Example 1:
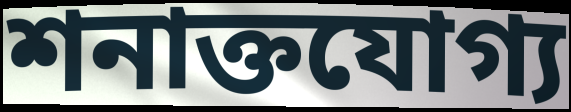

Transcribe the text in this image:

শনাক্তযোগ্য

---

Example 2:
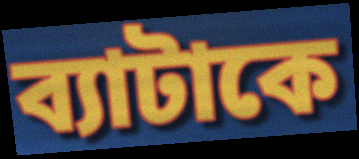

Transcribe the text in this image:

ব্যাটাকে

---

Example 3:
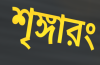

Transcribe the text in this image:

শৃঙ্গারং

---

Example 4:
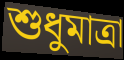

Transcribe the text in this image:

শুধুমাত্রা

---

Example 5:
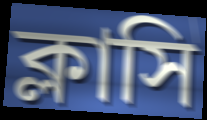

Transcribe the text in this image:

ক্লাসি